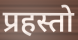
प्रहस्तो